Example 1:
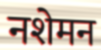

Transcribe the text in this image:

नशेमन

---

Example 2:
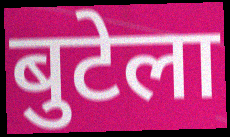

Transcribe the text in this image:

बुटेला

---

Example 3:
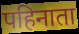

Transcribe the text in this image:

पहिनाता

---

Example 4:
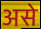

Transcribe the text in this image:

असे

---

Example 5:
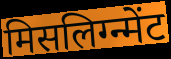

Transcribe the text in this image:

मिसलिग्न्मेंट